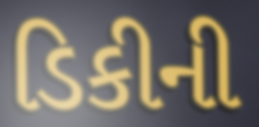
ડિકીની